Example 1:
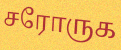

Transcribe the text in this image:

சரோருக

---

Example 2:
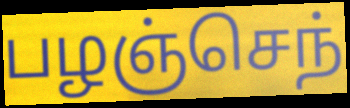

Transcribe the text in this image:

பழஞ்செந்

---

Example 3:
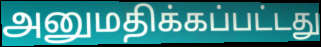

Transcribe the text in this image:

அனுமதிக்கப்பட்டது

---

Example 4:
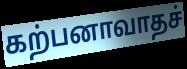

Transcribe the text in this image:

கற்பனாவாதச்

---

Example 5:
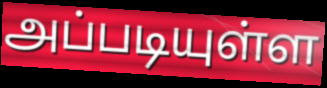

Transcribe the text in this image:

அப்படியுள்ள